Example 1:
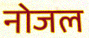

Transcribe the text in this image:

नोजल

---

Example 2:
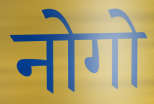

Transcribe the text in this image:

नोगो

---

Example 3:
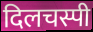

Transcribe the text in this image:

दिलचस्‍पी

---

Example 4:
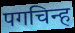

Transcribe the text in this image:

पगचिन्ह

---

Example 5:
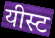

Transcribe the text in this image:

यीस्ट